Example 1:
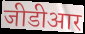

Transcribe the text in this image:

जीडीआर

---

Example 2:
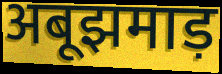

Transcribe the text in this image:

अबूझमाड़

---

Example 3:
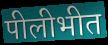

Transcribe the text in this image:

पीलीभीत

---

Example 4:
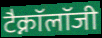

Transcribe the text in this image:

टैक्नॉलॉजी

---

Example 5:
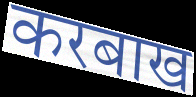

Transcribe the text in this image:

करबाख